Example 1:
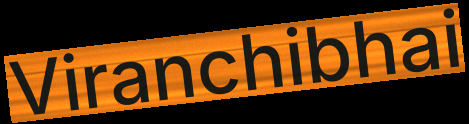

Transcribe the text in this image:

Viranchibhai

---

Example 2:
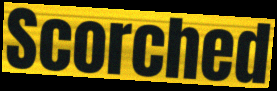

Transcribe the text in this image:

Scorched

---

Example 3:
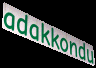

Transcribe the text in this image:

adakkondu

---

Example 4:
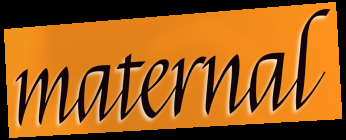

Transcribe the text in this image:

maternal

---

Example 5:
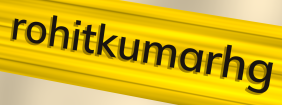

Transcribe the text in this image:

rohitkumarhg